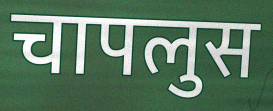
चापलुस